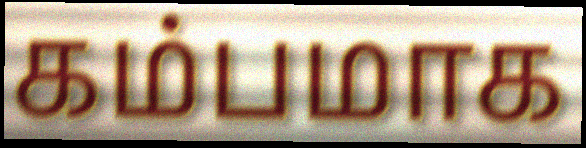
கம்பமாக